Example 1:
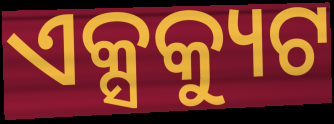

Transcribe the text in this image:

ଏକ୍ସକ୍ୟୁଟ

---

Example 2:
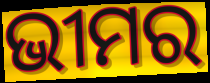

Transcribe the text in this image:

ଭୀମର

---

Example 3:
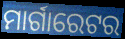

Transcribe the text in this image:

ମାର୍ଗାରେଟର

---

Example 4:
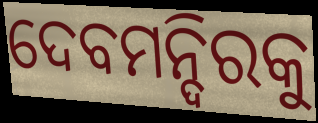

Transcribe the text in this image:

ଦେବମନ୍ଦିରକୁ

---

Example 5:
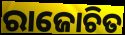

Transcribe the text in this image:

ରାଜୋଚିତ